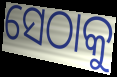
ସେଠାକୁ